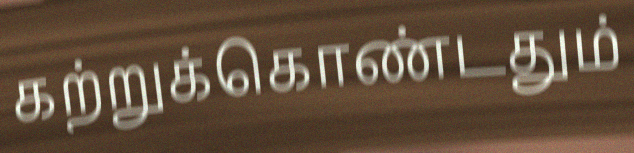
கற்றுக்கொண்டதும்